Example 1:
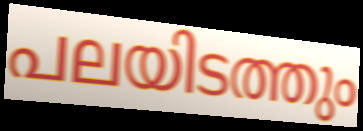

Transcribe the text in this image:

പലയിടത്തും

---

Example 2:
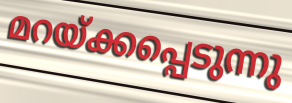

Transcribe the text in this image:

മറയ്ക്കപ്പെടുന്നു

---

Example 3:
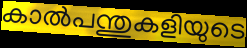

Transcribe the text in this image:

കാൽപന്തുകളിയുടെ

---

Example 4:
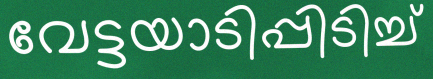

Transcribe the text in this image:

വേട്ടയാടിപ്പിടിച്ച്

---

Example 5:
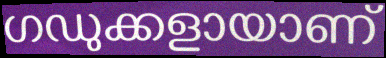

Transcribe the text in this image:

ഗഡുക്കളായാണ്